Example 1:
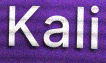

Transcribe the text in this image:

Kali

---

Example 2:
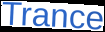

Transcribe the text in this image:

Trance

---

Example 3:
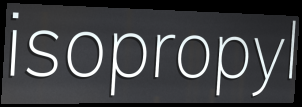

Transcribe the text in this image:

isopropyl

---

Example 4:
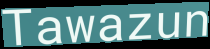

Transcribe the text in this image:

Tawazun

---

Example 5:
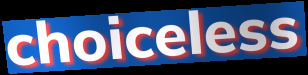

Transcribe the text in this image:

choiceless